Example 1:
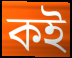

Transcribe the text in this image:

কই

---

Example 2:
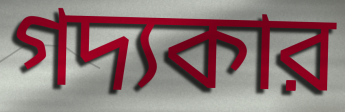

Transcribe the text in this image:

গদ্যকার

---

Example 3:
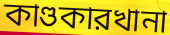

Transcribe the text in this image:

কাণ্ডকারখানা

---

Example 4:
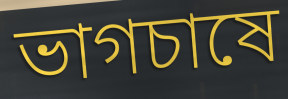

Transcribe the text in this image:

ভাগচাষে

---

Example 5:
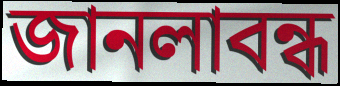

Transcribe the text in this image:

জানলাবন্ধ